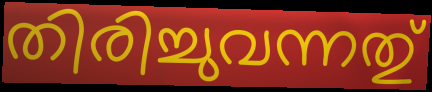
തിരിച്ചുവന്നതു്